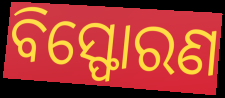
ବିସ୍ଫୋରଣ